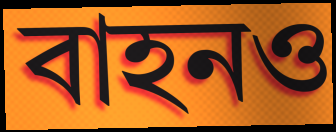
বাহনও